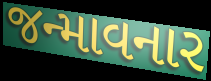
જન્માવનાર